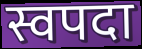
स्वपदा